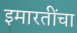
इमारतींचा